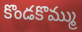
కొండకొమ్ము